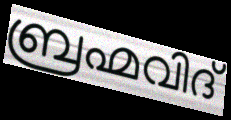
ബ്രഹ്മവിദ്